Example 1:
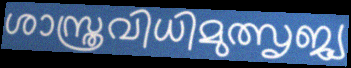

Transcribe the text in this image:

ശാസ്ത്രവിധിമുത്സൃജ്യ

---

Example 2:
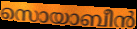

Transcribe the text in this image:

സൊയാബീൻ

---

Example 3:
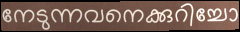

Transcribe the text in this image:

നേടുന്നവനെക്കുറിച്ചോ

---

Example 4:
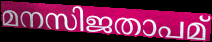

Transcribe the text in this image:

മനസിജതാപമ്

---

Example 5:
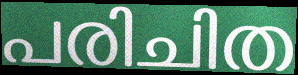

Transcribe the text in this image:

പരിചിത